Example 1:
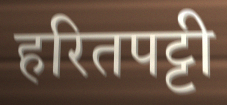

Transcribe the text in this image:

हरितपट्टी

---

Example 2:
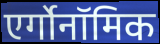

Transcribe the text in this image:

एर्गोनॉमिक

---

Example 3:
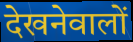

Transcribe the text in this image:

देखनेवालों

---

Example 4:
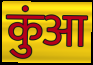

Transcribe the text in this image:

कुंआ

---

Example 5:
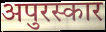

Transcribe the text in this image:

अपुरस्कार